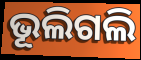
ଭୂଲିଗଲି